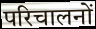
परिचालनों